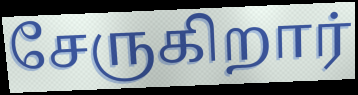
சேருகிறார்